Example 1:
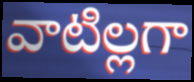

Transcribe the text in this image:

వాటిల్లగా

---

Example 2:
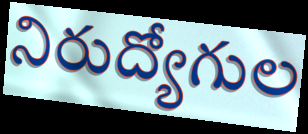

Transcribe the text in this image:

నిరుద్యోగుల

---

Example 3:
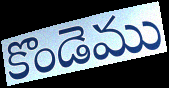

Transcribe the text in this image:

కొండెము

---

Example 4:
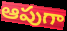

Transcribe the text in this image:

ఆపుగా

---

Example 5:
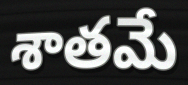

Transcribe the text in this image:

శాతమే